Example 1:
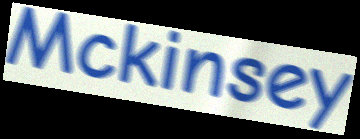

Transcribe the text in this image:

Mckinsey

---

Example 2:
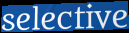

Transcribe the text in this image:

selective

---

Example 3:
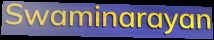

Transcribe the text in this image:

Swaminarayan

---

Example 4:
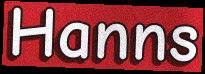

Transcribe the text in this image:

Hanns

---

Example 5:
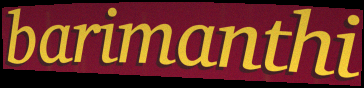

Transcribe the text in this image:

barimanthi